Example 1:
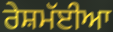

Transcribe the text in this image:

ਰੇਸ਼ਮੱਈਆ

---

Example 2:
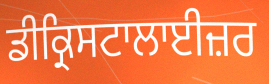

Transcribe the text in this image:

ਡੀਕ੍ਰਿਸਟਾਲਾਈਜ਼ਰ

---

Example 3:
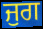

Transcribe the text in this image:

ਜੁਗ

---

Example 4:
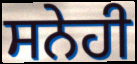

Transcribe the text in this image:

ਸਨੇਹੀ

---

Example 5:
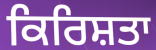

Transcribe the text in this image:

ਕਿਰਿਸ਼ਤਾ